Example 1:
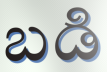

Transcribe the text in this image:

బడి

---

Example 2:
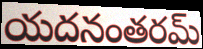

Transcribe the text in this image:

యదనంతరమ్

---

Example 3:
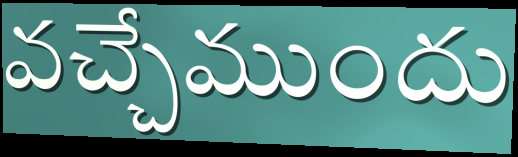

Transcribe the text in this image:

వచ్చేముందు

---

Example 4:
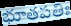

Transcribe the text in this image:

భూతపతిః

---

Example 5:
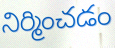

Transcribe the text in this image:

నిర్మించడం